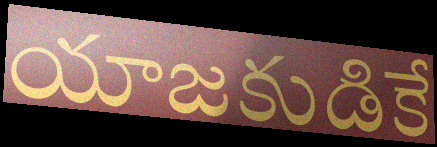
యాజకుడికే